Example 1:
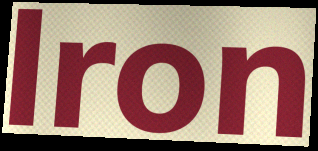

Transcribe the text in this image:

Iron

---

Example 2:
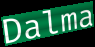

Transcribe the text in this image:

Dalma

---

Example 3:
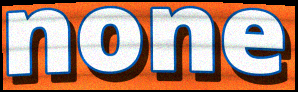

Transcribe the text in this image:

none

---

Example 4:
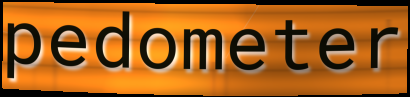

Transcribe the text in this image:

pedometer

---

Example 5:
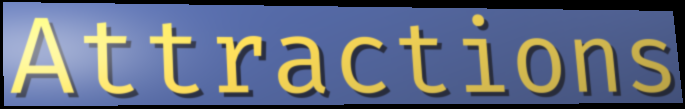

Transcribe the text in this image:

Attractions